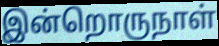
இன்றொருநாள்